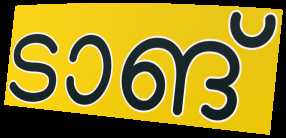
ടാങ്